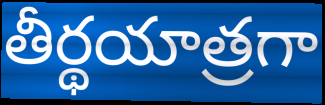
తీర్థయాత్రగా